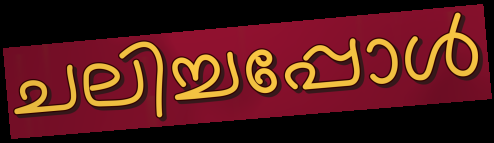
ചലിച്ചപ്പോൾ